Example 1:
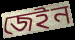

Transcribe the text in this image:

জেইন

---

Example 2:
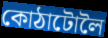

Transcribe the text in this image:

কোঠাটোলৈ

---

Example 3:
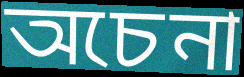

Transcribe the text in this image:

অচেনা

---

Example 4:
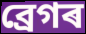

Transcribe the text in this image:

ব্ৰেগৰ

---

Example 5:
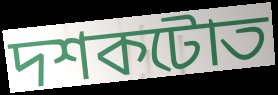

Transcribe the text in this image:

দশকটোত